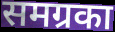
समग्रका